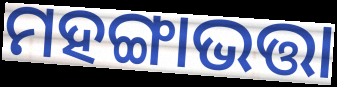
ମହଙ୍ଗାଭତ୍ତା